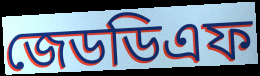
জেডডিএফ